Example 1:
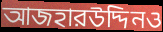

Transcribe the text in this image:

আজহারউদ্দিনও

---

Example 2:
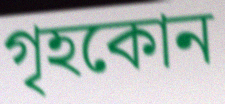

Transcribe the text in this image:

গৃহকোন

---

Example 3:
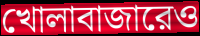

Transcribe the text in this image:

খোলাবাজারেও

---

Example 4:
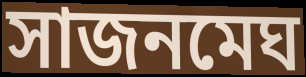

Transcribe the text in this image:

সাজনমেঘ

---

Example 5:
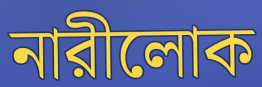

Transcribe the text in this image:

নারীলোক